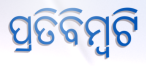
ପ୍ରତିବିମ୍ବଟି